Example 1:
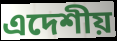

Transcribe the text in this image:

এদেশীয়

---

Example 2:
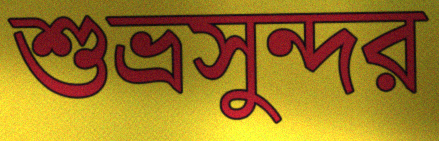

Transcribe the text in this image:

শুভ্রসুন্দর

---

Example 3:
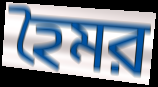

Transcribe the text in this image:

হৈমর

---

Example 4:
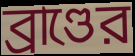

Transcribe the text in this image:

ব্রাণ্ডের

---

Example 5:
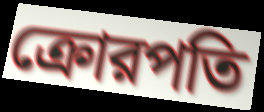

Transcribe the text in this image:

ক্রোরপতি